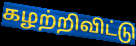
கழற்றிவிட்டு